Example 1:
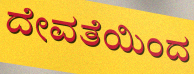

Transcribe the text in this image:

ದೇವತೆಯಿಂದ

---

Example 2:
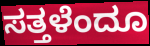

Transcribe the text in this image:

ಸತ್ತಳೆಂದೂ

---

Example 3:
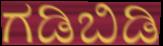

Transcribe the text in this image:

ಗಡಿಬಿಡಿ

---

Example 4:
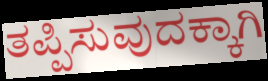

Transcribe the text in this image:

ತಪ್ಪಿಸುವುದಕ್ಕಾಗಿ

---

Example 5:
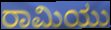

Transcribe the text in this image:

ರಾಮಿಯು